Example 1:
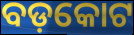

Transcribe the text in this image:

ବଡ଼କୋଟ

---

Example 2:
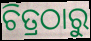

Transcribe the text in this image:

ଚିତ୍ରଠାରୁ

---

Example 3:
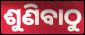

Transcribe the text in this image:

ଶୁଣିବାଠୁ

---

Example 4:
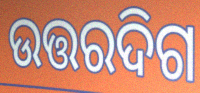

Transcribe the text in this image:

ଉତ୍ତରଦିଗ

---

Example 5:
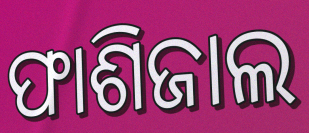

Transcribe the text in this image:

ଫାଶିଜାଲ